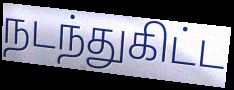
நடந்துகிட்ட